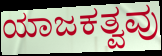
ಯಾಜಕತ್ವವು